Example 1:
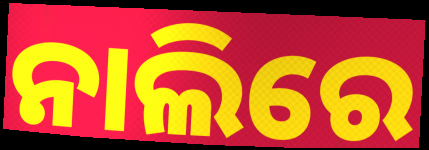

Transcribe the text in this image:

ନାଲିରେ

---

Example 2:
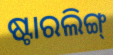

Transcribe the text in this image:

ଷ୍ଟାରଲିଙ୍ଗ୍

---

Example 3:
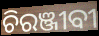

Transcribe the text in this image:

ଚିରଞ୍ଜୀବୀ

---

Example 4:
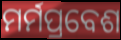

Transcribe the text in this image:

ମର୍ମପ୍ରବେଶ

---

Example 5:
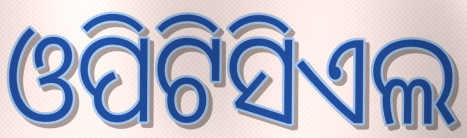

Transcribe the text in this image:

ଓପିଟିସିଏଲ